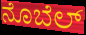
ನೊಬೆಲ್